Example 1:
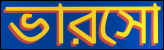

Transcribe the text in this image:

ভারসো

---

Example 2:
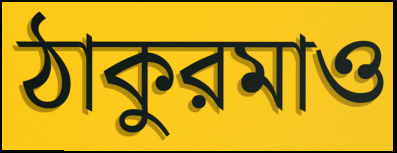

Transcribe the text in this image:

ঠাকুরমাও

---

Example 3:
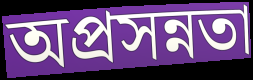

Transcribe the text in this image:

অপ্রসন্নতা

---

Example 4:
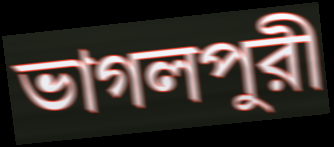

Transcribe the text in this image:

ভাগলপুরী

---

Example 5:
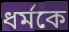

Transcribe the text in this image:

ধর্মকে